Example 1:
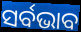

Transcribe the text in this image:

ସର୍ବଭାବ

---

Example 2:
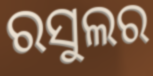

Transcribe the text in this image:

ରସୁଲର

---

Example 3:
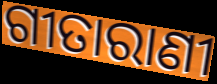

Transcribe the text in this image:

ଗୀତାରାଣୀ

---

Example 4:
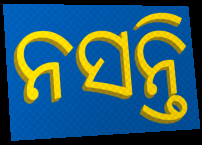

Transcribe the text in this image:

ନସନ୍ତି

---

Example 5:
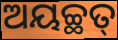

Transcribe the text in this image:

ଅୟଚ୍ଛତ୍